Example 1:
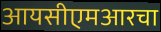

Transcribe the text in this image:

आयसीएमआरचा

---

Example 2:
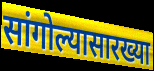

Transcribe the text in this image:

सांगोल्यासारख्या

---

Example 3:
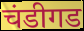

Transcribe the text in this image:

चंडीगड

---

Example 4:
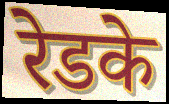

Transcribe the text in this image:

रेडके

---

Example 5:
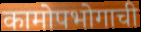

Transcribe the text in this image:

कामोपभोगाची